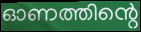
ഓണത്തിന്റെ